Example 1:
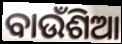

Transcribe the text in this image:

ବାଉଁଶିଆ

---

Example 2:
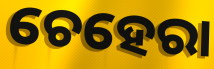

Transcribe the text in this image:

ଚେହେରା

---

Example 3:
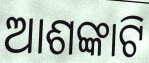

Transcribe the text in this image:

ଆଶଙ୍କାଟି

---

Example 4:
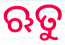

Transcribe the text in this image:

ଋତୁ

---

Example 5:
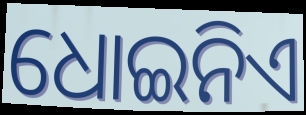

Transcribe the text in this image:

ଧୋଇନିଏ